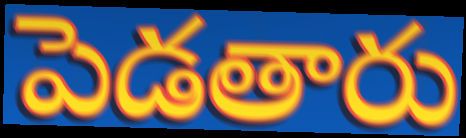
పెడతారు